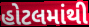
હોટલમાંથી